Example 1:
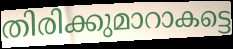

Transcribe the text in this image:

തിരിക്കുമാറാകട്ടെ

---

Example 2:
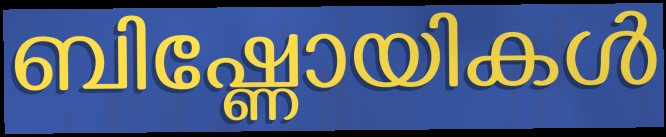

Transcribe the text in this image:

ബിഷ്ണോയികൾ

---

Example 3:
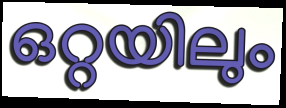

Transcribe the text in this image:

ഒറ്റയിലും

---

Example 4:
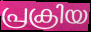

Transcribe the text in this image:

പ്രക്രിയ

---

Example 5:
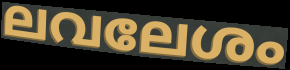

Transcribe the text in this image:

ലവലേശം